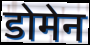
डोमेन